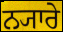
ਨ੍ਯਾਰੇ